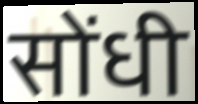
सोंधी